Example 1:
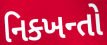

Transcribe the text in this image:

નિક્ખન્તો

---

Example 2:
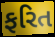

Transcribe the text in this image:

ફરિત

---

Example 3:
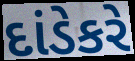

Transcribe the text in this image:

દાંડેકરે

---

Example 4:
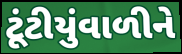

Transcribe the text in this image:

ટૂંટીયુંવાળીને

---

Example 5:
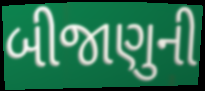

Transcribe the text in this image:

બીજાણુની